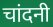
चांदनी